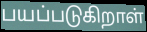
பயப்படுகிறாள்